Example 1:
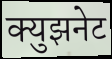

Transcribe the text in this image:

क्युझनेट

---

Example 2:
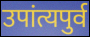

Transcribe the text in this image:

उपांत्यपुर्व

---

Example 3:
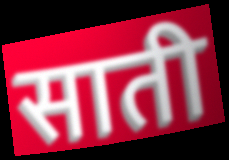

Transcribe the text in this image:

साती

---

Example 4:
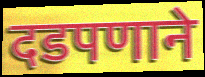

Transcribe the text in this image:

दडपणाने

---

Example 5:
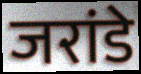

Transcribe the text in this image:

जरांडे